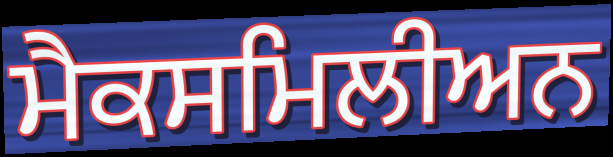
ਮੈਕਸਮਿਲੀਅਨ